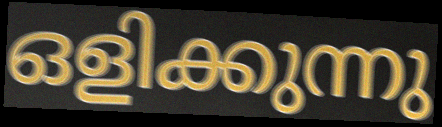
ഒളിക്കുന്നു